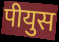
पीयुस